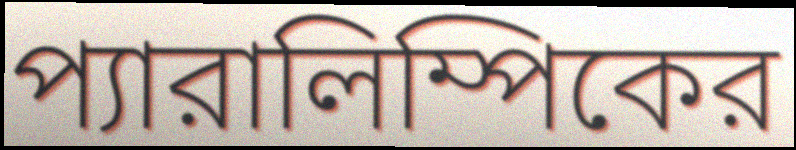
প্যারালিম্পিকের